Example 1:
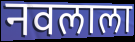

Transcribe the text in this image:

नवलाला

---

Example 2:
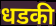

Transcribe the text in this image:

धडकी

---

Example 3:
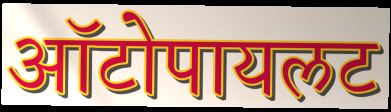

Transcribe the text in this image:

ऑटोपायलट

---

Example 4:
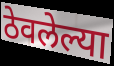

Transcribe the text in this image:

ठेवलेल्या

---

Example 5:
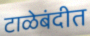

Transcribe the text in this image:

टाळेबंदीत